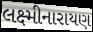
લક્ષ્મીનારાયણ